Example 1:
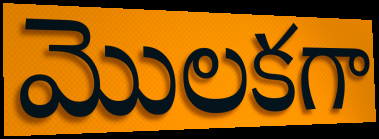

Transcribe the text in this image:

మొలకగా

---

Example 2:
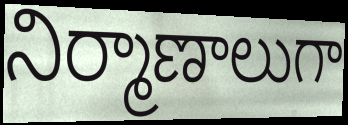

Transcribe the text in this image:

నిర్మాణాలుగా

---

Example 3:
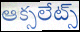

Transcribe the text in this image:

ఆక్సలేట్స్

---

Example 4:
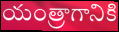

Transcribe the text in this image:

యంత్రాగానికి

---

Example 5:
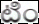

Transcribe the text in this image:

టిం